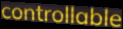
controllable